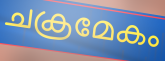
ചക്രമേകം